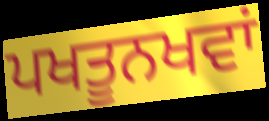
ਪਖਤੂਨਖਵਾਂ